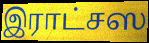
இராட்சஸ